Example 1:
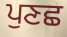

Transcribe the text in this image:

ਪੁਣਛ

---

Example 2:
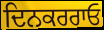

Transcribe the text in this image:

ਦਿਨਕਰਰਾਓ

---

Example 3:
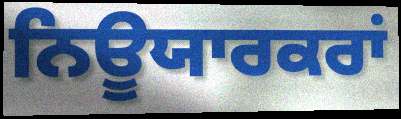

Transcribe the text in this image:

ਨਿਊਯਾਰਕਰਾਂ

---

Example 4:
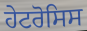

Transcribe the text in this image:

ਹੇਟਰੋਸਿਸ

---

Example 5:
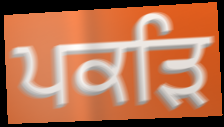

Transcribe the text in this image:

ਪਕੜਿ